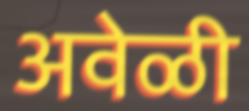
अवेळी